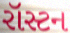
રૉસ્ટન